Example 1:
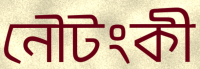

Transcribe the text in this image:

নৌটংকী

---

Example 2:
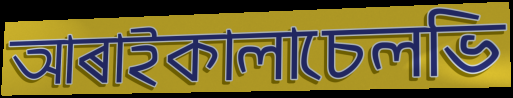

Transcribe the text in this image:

আৰাইকালাচেলভি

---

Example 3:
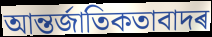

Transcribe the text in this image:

আন্তৰ্জাতিকতাবাদৰ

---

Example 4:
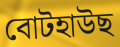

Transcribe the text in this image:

বোটহাউছ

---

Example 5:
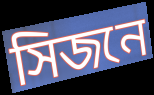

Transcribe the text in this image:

সিজনে